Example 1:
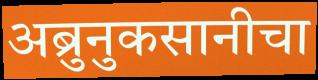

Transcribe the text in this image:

अब्रुनुकसानीचा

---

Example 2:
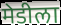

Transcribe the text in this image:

मेडीला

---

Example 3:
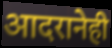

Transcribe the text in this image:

आदरानेही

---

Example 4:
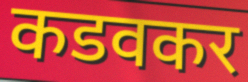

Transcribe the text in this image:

कडवकर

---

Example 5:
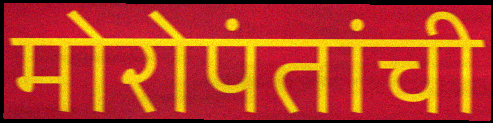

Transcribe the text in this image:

मोरोपंतांची